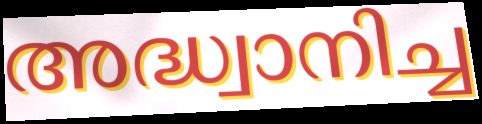
അദ്ധ്വാനിച്ച